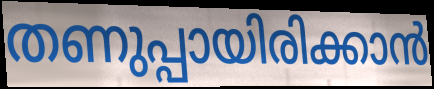
തണുപ്പായിരിക്കാൻ